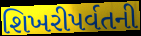
શિખરીપર્વતની